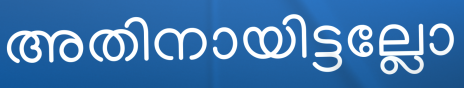
അതിനായിട്ടല്ലോ